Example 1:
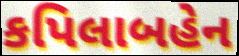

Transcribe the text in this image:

કપિલાબહેન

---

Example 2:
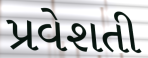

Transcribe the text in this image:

પ્રવેશતી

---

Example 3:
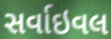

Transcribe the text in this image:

સર્વાઇવલ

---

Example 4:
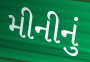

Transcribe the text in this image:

મીનીનું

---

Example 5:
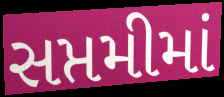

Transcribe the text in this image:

સપ્તમીમાં